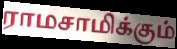
ராமசாமிக்கும்